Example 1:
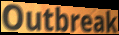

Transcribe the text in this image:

Outbreak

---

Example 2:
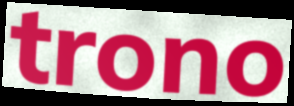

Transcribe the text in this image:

trono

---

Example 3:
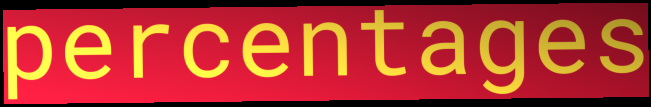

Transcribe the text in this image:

percentages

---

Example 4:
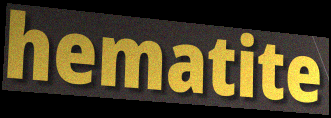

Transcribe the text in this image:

hematite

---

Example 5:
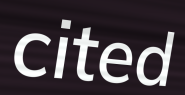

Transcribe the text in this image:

cited